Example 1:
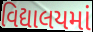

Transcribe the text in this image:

વિદ્યાલયમાં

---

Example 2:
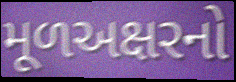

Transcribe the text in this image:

મૂળઅક્ષરનો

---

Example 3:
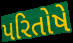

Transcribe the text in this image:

પરિતોષે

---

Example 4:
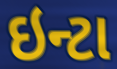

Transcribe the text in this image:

ઇન્ટા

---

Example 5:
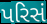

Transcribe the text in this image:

પરિસં